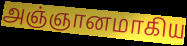
அஞ்ஞானமாகிய